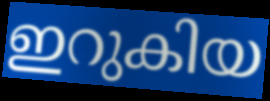
ഇറുകിയ